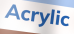
Acrylic